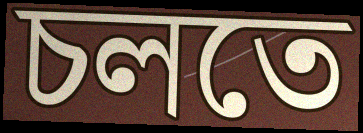
চলতে